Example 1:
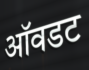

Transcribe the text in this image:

ऑवडट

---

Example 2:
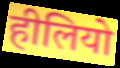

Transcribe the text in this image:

हीलियो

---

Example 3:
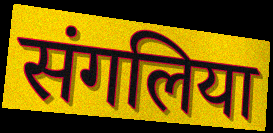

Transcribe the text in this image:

संगलिया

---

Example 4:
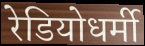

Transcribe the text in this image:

रेडियोधर्मी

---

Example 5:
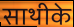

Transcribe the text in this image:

साथीके